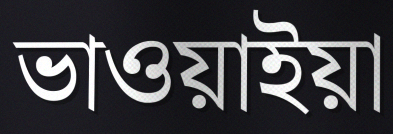
ভাওয়াইয়া